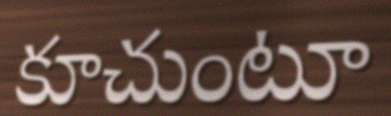
కూచుంటూ